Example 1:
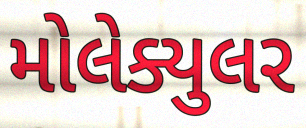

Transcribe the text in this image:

મોલેક્યુલર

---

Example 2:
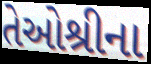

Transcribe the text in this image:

તેઓશ્રીના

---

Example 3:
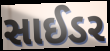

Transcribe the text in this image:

સાઈડર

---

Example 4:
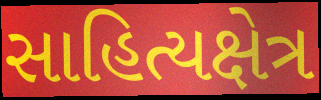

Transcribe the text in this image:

સાહિત્યક્ષેત્ર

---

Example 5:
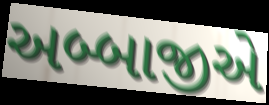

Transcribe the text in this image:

અબ્બાજીએ